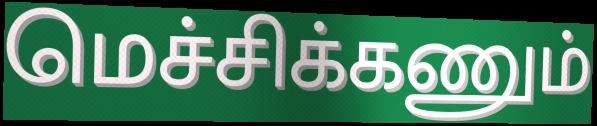
மெச்சிக்கணும்